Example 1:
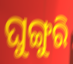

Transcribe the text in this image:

ଘୁଙ୍ଗୁରି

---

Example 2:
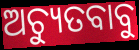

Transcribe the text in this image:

ଅଚ୍ୟୁତବାବୁ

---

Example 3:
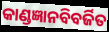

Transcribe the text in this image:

କାଣ୍ଡଜ୍ଞାନବିବର୍ଜିତ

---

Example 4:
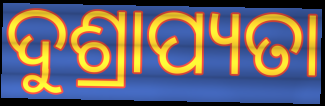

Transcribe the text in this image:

ଦୁଶ୍ରାପ୍ୟତା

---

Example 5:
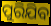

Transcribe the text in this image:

ପୁରିଯିବ